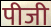
पीजी